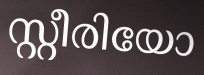
സ്റ്റീരിയോ